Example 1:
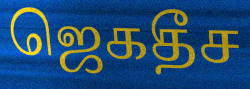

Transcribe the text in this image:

ஜெகதீச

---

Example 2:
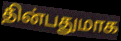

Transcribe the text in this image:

தின்பதுமாக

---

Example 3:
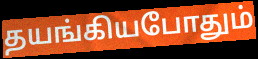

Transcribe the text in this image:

தயங்கியபோதும்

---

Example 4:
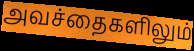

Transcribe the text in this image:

அவச்தைகளிலும்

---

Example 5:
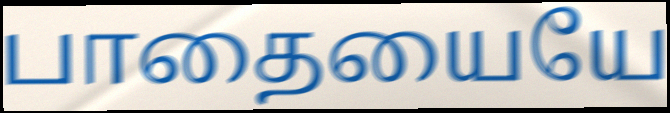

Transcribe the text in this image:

பாதையையே